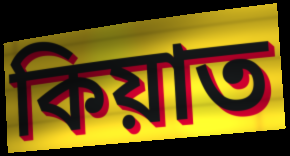
কিয়াত